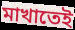
মাখাতেই